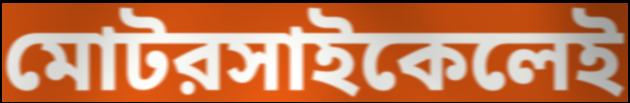
মোটরসাইকেলেই